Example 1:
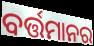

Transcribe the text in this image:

ବର୍ତ୍ତମାନର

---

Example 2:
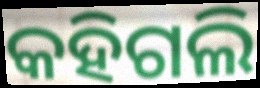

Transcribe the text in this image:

କହିଗଲି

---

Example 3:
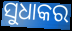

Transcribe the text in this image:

ସୁଧାକର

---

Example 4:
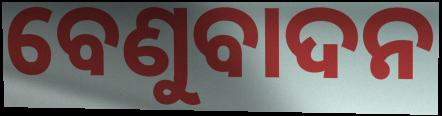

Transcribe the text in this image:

ବେଣୁବାଦନ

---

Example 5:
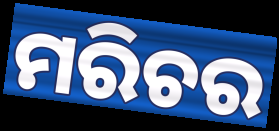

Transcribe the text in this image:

ମରିଚର